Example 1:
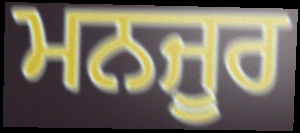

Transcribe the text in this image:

ਮਨਜੂਰ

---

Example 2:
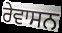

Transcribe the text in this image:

ਰੇਵਾਸਨ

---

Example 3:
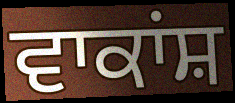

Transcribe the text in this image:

ਵਾਕਾਂਸ਼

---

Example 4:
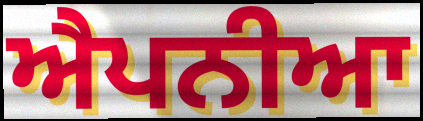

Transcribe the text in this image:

ਐਪਨੀਆ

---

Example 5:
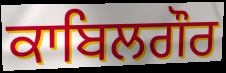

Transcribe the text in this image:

ਕਾਬਿਲਗੌਰ